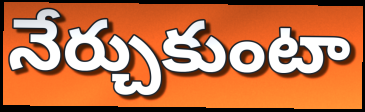
నేర్చుకుంటా